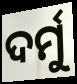
ଦର୍ମୁ